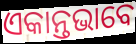
ଏକାନ୍ତଭାବେ